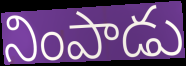
నింపాడు